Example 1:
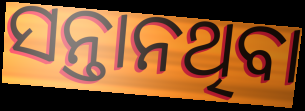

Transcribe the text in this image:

ସନ୍ତାନଥିବା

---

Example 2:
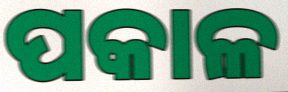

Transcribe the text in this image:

ପକାଳ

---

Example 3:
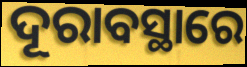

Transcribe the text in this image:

ଦୂରାବସ୍ଥାରେ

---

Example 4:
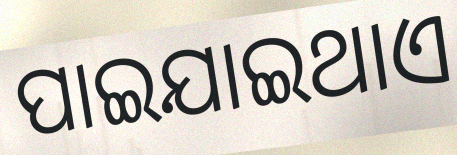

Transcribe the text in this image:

ପାଇଯାଇଥାଏ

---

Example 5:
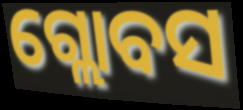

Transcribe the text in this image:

ଗ୍ଲୋବସ